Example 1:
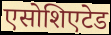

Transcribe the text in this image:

एसोशिएटेड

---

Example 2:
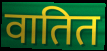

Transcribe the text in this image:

वातित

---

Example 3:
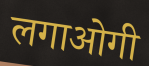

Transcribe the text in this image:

लगाओगी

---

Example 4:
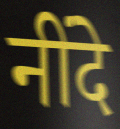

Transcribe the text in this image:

नींदे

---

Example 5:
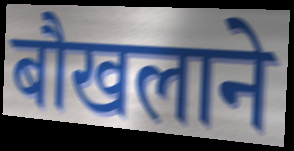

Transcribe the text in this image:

बौखलाने